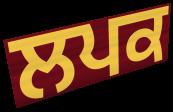
ਲਪਕ